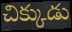
చిక్కుడు